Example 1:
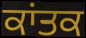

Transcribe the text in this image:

ਕਾਂਤਕ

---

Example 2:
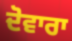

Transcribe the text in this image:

ਦੋਵਾਰਾ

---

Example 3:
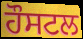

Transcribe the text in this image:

ਹੌਸਟਲ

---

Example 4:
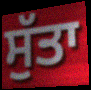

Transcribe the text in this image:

ਸੁੱਤਾ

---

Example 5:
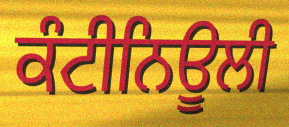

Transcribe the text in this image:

ਕੰਟੀਨਿਊਲੀ